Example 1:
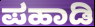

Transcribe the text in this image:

ಪಹಾಡಿ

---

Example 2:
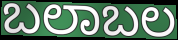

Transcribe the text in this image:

ಬಲಾಬಲ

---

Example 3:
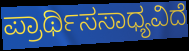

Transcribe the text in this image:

ಪ್ರಾರ್ಥಿಸಸಾಧ್ಯವಿದೆ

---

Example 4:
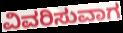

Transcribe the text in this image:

ವಿವರಿಸುವಾಗ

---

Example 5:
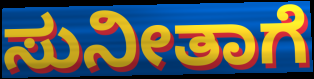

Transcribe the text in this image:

ಸುನೀತಾಗೆ